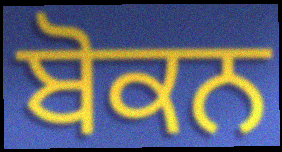
ਬੋਕਨ